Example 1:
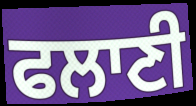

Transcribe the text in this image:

ਫਲਾਣੀ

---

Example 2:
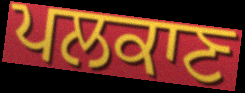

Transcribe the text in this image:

ਪਲਕਾਣ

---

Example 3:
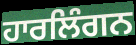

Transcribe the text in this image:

ਹਾਰਲਿੰਗਨ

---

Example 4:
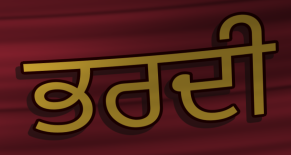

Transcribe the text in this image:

ਭਰਦੀ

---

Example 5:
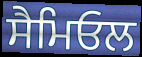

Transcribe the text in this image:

ਸੈਮਿਓਲ